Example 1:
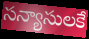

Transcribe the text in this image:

సన్యాసులకే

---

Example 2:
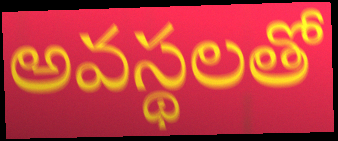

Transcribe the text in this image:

అవస్థలతో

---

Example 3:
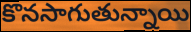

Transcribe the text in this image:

కొనసాగుతున్నాయి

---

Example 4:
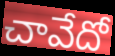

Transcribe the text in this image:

చావేదో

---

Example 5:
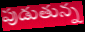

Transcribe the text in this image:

పుడుతున్న